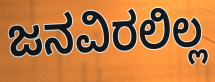
ಜನವಿರಲಿಲ್ಲ